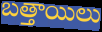
బత్తాయిలు